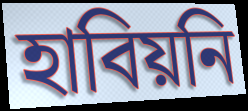
হাবিয়নি